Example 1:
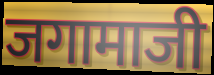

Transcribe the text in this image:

जगामाजी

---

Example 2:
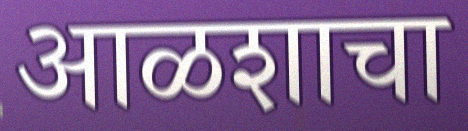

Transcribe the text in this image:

आळशाचा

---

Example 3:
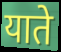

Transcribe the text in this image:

याते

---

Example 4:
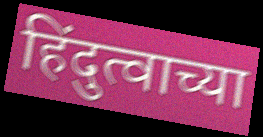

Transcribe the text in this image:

हिंदुत्वाच्या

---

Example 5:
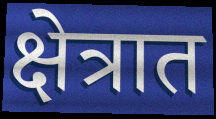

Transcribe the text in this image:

क्षेत्रात